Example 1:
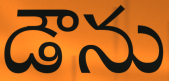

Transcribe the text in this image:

డౌను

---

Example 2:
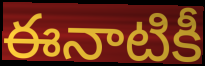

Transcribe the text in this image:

ఈనాటికీ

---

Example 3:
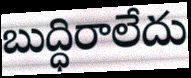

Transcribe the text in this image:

బుద్ధిరాలేదు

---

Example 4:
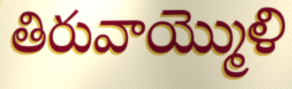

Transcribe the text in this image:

తిరువాయ్మొళి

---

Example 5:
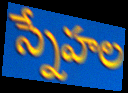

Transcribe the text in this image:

స్నేహల